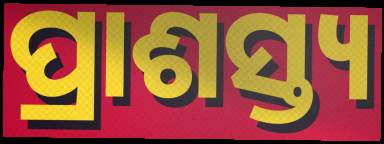
ପ୍ରାଶସ୍ତ୍ୟ